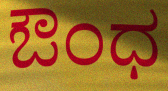
ಔಂಧ